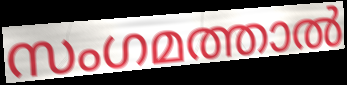
സംഗമത്താൽ